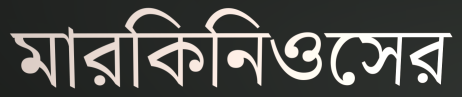
মারকিনিওসের